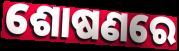
ଶୋଷଣରେ